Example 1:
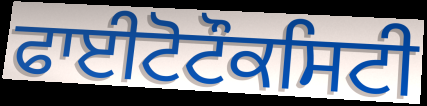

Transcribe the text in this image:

ਫਾਈਟੋਟੌਕਸਿਟੀ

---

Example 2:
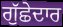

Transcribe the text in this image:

ਗੁੱਛੇਦਾਰ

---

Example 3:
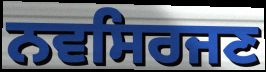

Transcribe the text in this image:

ਨਵਸਿਰਜਣ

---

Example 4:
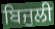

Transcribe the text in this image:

ਬਿਜੁਲੀ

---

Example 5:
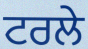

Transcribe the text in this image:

ਟਰਲੇ